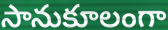
సానుకూలంగా